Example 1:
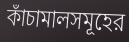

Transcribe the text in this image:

কাঁচামালসমূহের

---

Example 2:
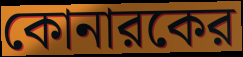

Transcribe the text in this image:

কোনারকের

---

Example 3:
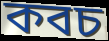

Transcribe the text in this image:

কবচ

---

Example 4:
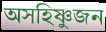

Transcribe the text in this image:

অসহিষ্ণুজন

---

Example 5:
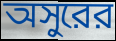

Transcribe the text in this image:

অসুরের